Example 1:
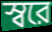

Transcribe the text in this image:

স্বরে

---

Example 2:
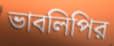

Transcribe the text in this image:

ভাবলিপির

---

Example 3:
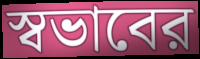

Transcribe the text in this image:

স্বভাবের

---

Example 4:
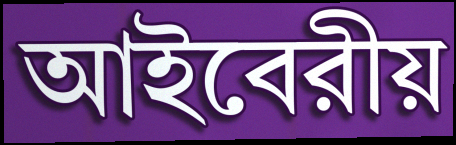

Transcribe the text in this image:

আইবেরীয়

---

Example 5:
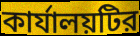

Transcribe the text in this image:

কার্যালয়টির